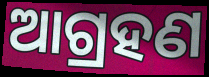
ଆଗ୍ରହଣ